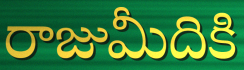
రాజుమీదికి